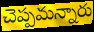
చెప్పమన్నారు